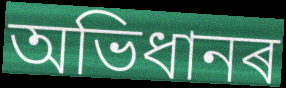
অভিধানৰ